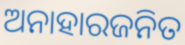
ଅନାହାରଜନିତ